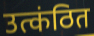
उत्कंठित